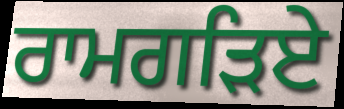
ਰਾਮਗੜਿਏ